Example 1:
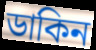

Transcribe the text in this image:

ডাকিন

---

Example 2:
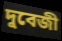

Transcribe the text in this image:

দুবেজী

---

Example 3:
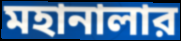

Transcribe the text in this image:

মহানালার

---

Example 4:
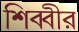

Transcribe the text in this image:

শিব্বীর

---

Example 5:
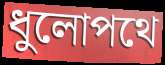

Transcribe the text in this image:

ধুলোপথে